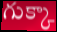
గుక్కా